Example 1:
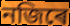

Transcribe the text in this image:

নজিৰে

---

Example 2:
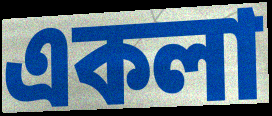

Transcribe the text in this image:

একলা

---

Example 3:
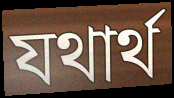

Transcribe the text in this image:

যথাৰ্থ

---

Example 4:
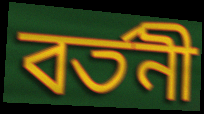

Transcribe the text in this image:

বৰ্তনী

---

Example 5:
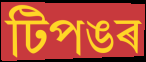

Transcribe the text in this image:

টিপঙৰ